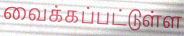
வைக்கப்பட்டுள்ள